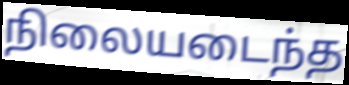
நிலையடைந்த